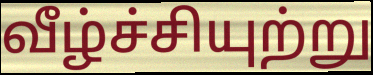
வீழ்ச்சியுற்று